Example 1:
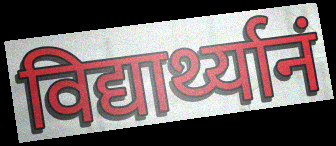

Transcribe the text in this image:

विद्यार्थ्यानं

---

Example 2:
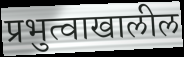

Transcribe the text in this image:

प्रभुत्वाखालील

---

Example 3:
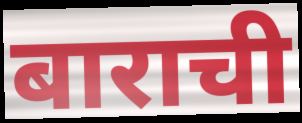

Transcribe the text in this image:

बाराची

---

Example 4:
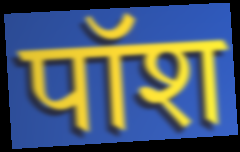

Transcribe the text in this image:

पॉश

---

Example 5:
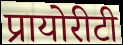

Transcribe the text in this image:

प्रायोरीटी